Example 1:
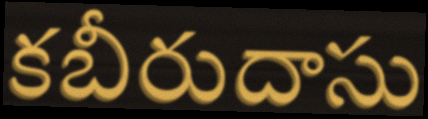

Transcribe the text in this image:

కబీరుదాసు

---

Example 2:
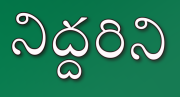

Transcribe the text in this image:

నిద్దరిని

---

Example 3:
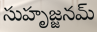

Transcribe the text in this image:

సుహృజ్జనమ్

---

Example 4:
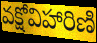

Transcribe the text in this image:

వక్షోవిహారిణి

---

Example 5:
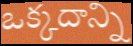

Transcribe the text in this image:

ఒక్కదాన్ని